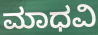
ಮಾಧವಿ